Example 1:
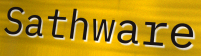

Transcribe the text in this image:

Sathware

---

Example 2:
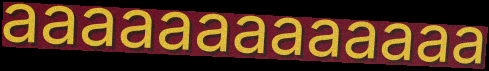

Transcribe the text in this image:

aaaaaaaaaaaaa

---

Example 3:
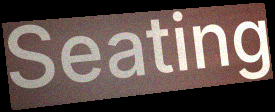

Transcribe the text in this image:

Seating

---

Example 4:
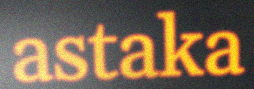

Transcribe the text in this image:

astaka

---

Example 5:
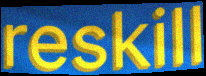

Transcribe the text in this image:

reskill